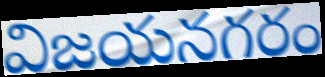
విజయనగరం